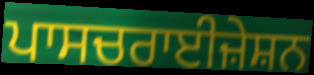
ਪਾਸਚਰਾਈਜ਼ੇਸ਼ਨ